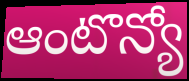
ఆంటొన్యో